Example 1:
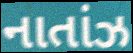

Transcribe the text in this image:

નાતાંઝ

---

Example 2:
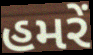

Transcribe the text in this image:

હમરેં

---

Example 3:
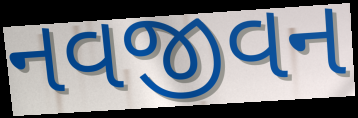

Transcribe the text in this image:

નવજીવન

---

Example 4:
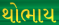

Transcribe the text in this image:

થોભાય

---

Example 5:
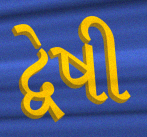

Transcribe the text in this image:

દ્વેષી